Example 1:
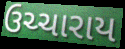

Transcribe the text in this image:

ઉચ્ચારાય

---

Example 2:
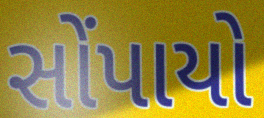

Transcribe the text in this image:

સોંપાયો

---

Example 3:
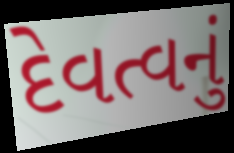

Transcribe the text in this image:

દેવત્વનું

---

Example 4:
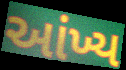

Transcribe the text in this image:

આંખ્ય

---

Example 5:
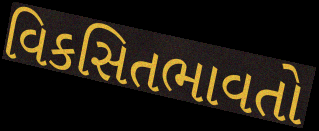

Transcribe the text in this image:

વિકસિતભાવતો